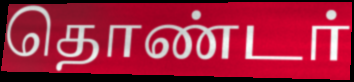
தொண்டர்